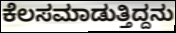
ಕೆಲಸಮಾಡುತ್ತಿದ್ದನು